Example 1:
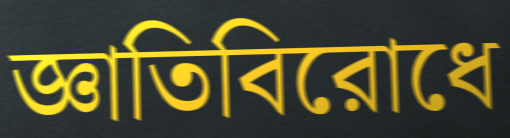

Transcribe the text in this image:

জ্ঞাতিবিরোধে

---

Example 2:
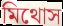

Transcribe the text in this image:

মিথোস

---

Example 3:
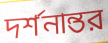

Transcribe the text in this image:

দর্শনান্তর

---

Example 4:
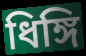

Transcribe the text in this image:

ধিঙ্গি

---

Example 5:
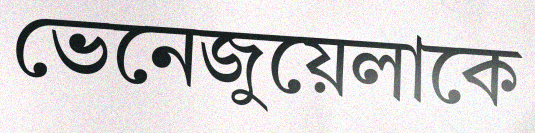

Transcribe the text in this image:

ভেনেজুয়েলাকে